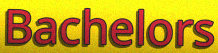
Bachelors